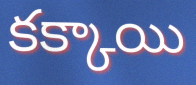
కక్కాయి